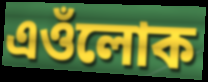
এওঁলোক